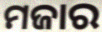
ମଜାର